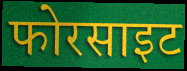
फोरसाइट